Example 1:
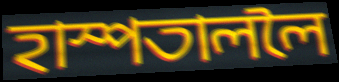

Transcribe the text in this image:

হাস্পতাললৈ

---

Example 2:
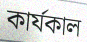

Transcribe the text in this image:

কাৰ্যকাল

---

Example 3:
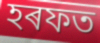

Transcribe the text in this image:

হৰফত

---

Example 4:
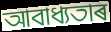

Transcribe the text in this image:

আবাধ্যতাৰ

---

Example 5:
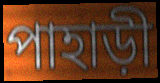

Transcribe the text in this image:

পাহাড়ী